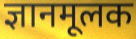
ज्ञानमूलक